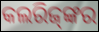
କଲରିଜ୍‌ଙ୍କର